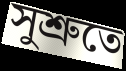
সুশ্ৰুতে